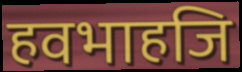
हवभाहजि